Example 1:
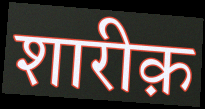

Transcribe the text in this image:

शारीक़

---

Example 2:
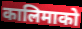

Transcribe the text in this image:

कालिमाको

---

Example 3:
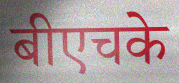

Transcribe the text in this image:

बीएचके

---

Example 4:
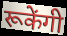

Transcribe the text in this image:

रूकेंगी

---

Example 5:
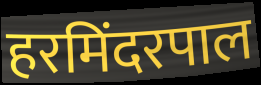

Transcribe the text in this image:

हरमिंदरपाल